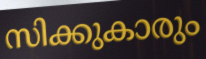
സിക്കുകാരും